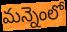
మన్నెంలో